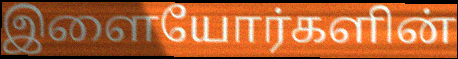
இளையோர்களின்